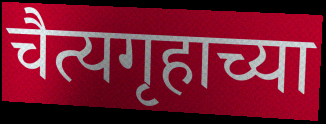
चैत्यगृहाच्या